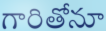
గారితోనూ